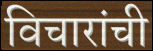
विचारांची